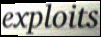
exploits